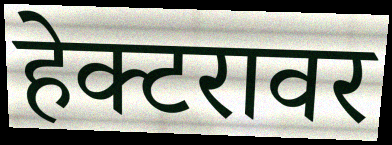
हेक्टरावर